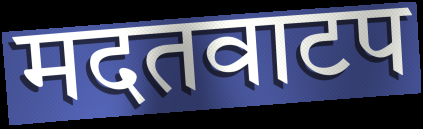
मदतवाटप